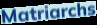
Matriarchs